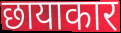
छायाकार